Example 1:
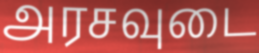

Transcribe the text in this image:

அரசவுடை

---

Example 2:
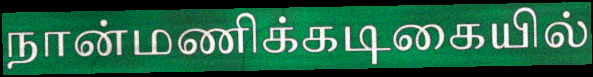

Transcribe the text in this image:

நான்மணிக்கடிகையில்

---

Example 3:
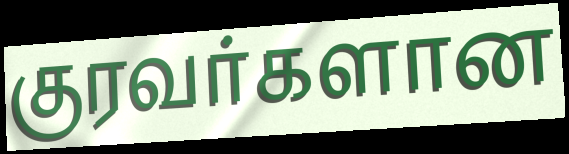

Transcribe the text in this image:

குரவர்களான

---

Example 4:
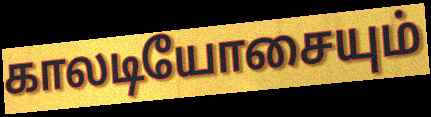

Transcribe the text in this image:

காலடியோசையும்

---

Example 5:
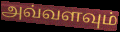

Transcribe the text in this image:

அவ்வளவும்